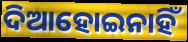
ଦିଆହୋଇନାହିଁ